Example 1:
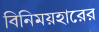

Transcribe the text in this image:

বিনিময়হারের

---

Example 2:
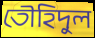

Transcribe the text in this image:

তৌহিদুল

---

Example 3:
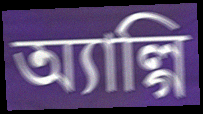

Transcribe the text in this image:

অ্যাল্গি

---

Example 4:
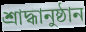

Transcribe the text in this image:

শ্রাদ্ধানুষ্ঠান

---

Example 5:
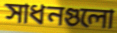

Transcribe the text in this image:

সাধনগুলো